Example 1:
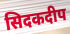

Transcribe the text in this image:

सिदकदीप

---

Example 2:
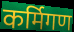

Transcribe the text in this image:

कर्मिगण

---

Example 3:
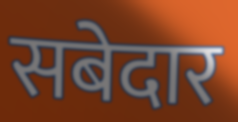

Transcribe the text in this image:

सबेदार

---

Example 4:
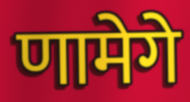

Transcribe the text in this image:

णामेगे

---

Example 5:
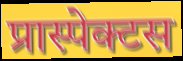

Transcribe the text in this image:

प्रास्पेक्टस